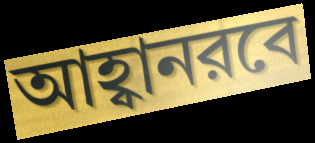
আহ্বানরবে